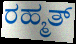
ರಹ್ಮತ್